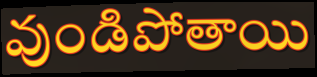
వుండిపోతాయి